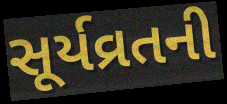
સૂર્યવ્રતની